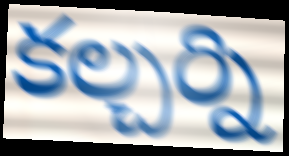
కల్చర్ని